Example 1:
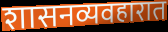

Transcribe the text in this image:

शासनव्यवहारात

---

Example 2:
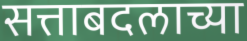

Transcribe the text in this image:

सत्ताबदलाच्या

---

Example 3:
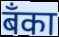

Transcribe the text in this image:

बँका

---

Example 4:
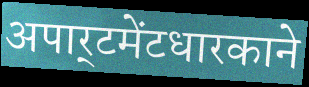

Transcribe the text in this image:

अपार्टमेंटधारकाने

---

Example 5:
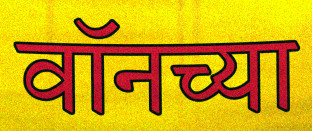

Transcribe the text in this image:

वॉनच्या